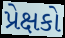
પ્રેક્ષકો